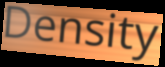
Density